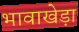
भावाखेड़ा